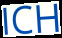
ICH